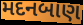
મદનબાણ